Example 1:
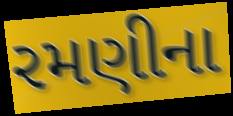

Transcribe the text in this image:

રમણીના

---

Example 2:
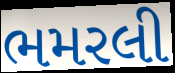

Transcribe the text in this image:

ભમરલી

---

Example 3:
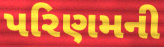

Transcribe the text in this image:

પરિણમની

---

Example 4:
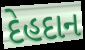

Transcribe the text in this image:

દેહદાન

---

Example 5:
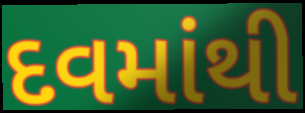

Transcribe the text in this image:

દવમાંથી